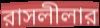
রাসলীলার